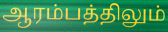
ஆரம்பத்திலும்